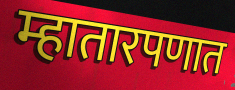
म्हातारपणात